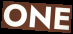
ONE